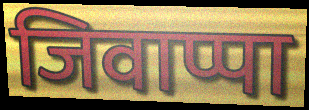
जिवाप्पा